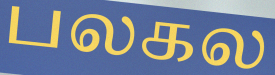
பலகல